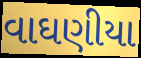
વાઘણીયા